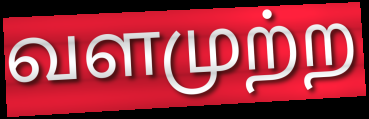
வளமுற்ற